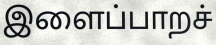
இளைப்பாறச்